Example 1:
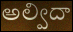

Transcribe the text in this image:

అల్విదా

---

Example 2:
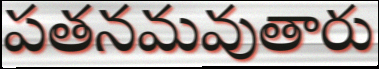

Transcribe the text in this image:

పతనమవుతారు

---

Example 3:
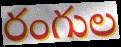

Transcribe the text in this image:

రంగుల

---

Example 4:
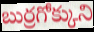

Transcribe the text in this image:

బుర్రగోక్కుని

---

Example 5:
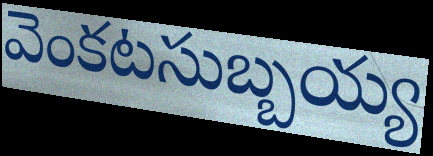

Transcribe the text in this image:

వెంకటసుబ్బయ్య